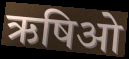
ऋषिओ